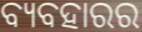
ବ୍ୟବହାରର